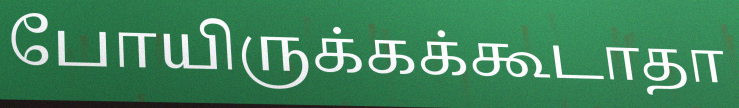
போயிருக்கக்கூடாதா